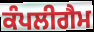
ਕੰਪਲੀਗੈਮ